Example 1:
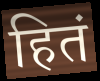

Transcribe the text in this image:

हितं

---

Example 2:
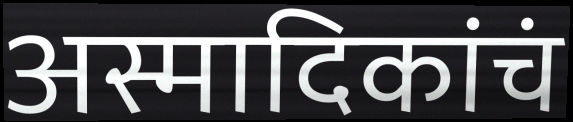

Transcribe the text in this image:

अस्मादिकांचं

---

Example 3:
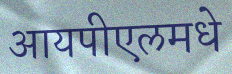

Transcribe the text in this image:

आयपीएलमधे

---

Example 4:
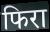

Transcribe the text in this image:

फिरा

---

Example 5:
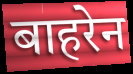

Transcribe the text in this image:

बाहरेन